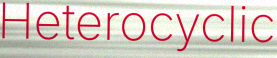
Heterocyclic